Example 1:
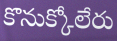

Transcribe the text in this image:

కొనుక్కోలేరు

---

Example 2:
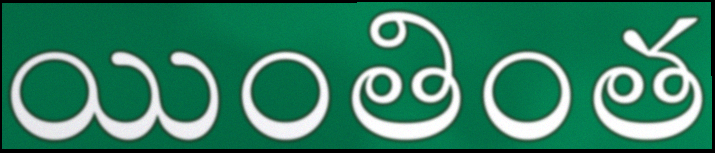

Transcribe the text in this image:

యింతింత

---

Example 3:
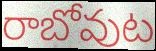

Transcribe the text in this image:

రాబోవుట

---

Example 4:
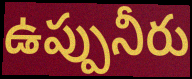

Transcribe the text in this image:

ఉప్పునీరు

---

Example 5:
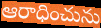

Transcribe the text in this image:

ఆరాధించును